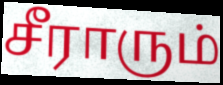
சீராரும்